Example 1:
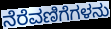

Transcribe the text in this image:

ನೆರೆವಣಿಗೆಗಳನು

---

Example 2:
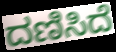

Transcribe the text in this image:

ದಣಿಸಿದೆ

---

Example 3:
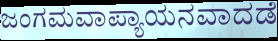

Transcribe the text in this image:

ಜಂಗಮವಾಪ್ಯಾಯನವಾದಡೆ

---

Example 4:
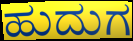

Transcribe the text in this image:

ಹುದುಗ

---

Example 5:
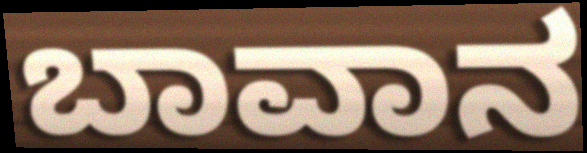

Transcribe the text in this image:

ಬಾವಾನ